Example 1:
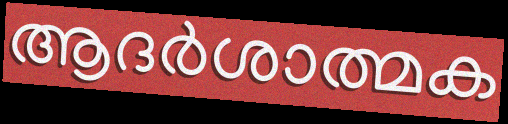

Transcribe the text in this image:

ആദർശാത്മക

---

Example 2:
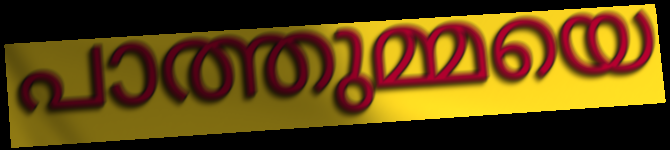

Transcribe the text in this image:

പാത്തുമ്മയെ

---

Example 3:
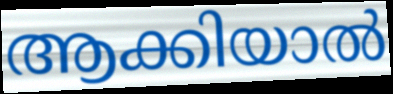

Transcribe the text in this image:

ആക്കിയാൽ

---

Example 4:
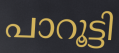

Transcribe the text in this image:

പാറൂട്ടി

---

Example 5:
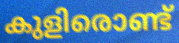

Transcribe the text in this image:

കുളിരൊണ്ട്